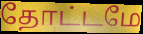
தோட்டமே